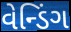
વેન્ડિંગ